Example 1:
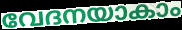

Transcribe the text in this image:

വേദനയാകാം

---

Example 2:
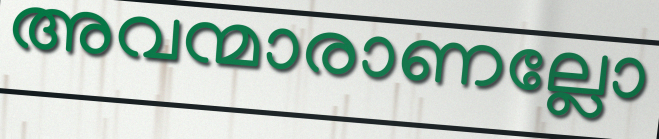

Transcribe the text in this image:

അവന്മാരാണല്ലോ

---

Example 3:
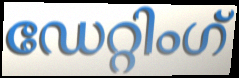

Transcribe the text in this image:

ഡേറ്റിംഗ്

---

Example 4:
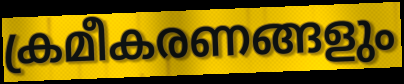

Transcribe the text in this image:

ക്രമീകരണങ്ങളും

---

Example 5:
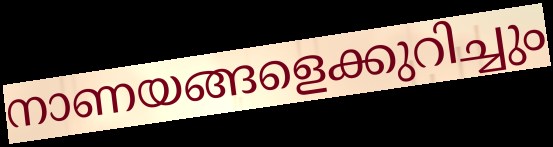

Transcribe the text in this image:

നാണയങ്ങളെക്കുറിച്ചും